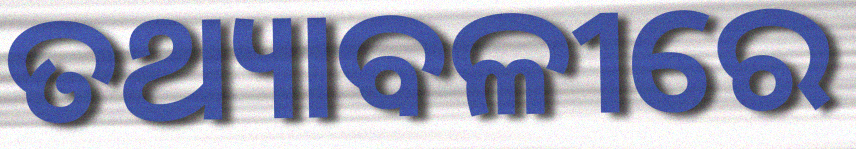
ତଥ୍ୟାବଳୀରେ